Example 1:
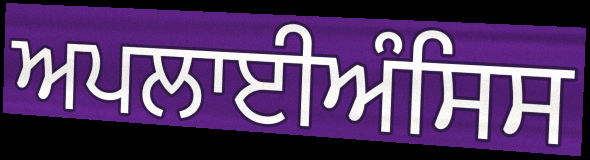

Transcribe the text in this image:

ਅਪਲਾਈਅੰਸਿਸ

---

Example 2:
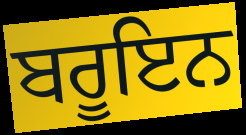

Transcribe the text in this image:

ਬਰੂਇਨ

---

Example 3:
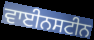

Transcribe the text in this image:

ਵਾਈਨਸਟੀਨ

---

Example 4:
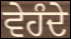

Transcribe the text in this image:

ਵੇਹੰਦੇ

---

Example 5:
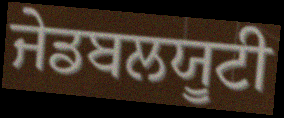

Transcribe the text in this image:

ਜੇਡਬਲਯੂਟੀ